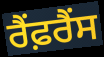
ਰੈਂਫ਼ਰੈਂਸ